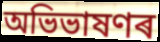
অভিভাষণৰ